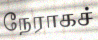
நேராகச்